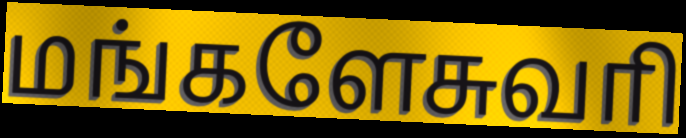
மங்களேசுவரி